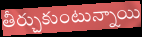
తీర్చుకుంటున్నాయి